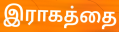
இராகத்தை